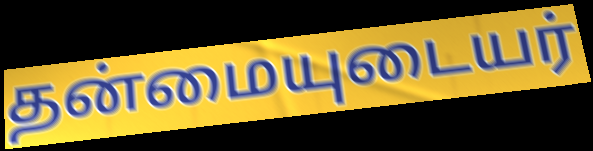
தன்மையுடையர்